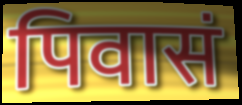
पिवासं